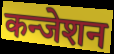
कन्जेशन